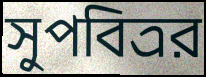
সুপবিত্রর